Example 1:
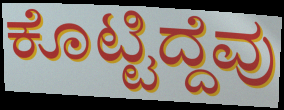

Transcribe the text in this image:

ಕೊಟ್ಟಿದ್ದೆವು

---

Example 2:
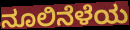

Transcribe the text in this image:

ನೂಲಿನೆಳೆಯ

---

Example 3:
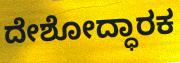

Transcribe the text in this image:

ದೇಶೋದ್ಧಾರಕ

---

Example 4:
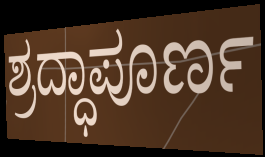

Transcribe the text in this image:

ಶ್ರದ್ಧಾಪೂರ್ಣ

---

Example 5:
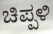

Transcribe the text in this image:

ಚಿಪ್ಪಳಿ